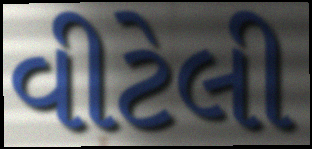
વીટેલી